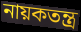
নায়কতন্ত্র